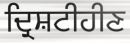
ਦ੍ਰਿਸ਼ਟੀਹੀਣ